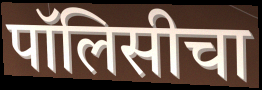
पॉलिसीचा